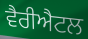
ਵੈਰੀਐਟਲ